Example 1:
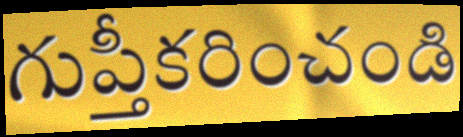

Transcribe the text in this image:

గుప్తీకరించండి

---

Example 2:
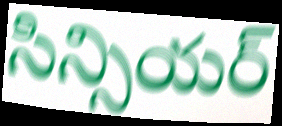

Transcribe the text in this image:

సిన్సియర్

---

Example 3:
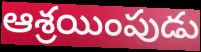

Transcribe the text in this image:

ఆశ్రయింపుడు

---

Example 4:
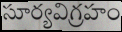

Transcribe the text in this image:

సూర్యవిగ్రహం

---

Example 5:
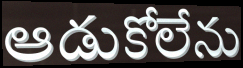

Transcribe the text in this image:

ఆడుకోలేను